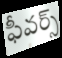
ఫీవర్స్